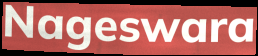
Nageswara